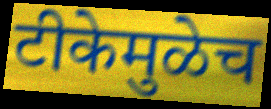
टीकेमुळेच